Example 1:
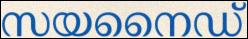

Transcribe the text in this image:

സയനൈഡ്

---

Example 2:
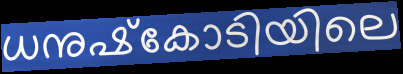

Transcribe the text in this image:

ധനുഷ്‌കോടിയിലെ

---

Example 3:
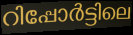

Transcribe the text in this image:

റിപ്പോർട്ടിലെ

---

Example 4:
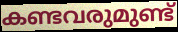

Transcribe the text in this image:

കണ്ടവരുമുണ്ട്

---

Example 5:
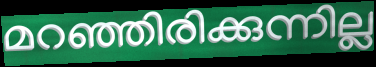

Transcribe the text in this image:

മറഞ്ഞിരിക്കുന്നില്ല